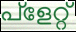
പ്ളേറ്റ്